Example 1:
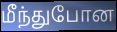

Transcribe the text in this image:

மீந்துபோன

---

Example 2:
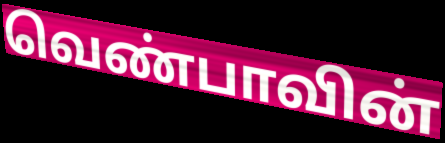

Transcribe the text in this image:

வெண்பாவின்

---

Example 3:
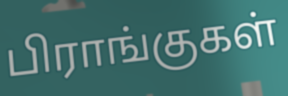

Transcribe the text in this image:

பிராங்குகள்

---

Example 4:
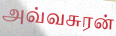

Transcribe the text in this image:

அவ்வசுரன்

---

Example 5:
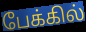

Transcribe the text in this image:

பேக்கில்